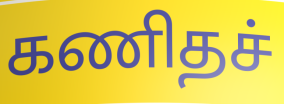
கணிதச்